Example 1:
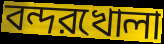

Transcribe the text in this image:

বন্দরখোলা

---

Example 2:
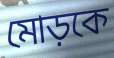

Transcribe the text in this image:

মোড়কে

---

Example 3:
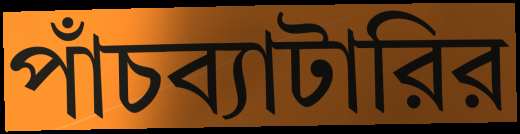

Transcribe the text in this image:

পাঁচব্যাটারির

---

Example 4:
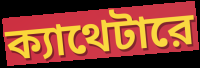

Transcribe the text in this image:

ক্যাথেটারে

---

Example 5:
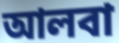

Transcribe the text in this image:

আলবা